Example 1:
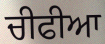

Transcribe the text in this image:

ਚੀਫੀਆ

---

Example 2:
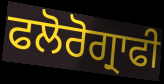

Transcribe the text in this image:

ਫਲੋਰੋਗ੍ਰਾਫੀ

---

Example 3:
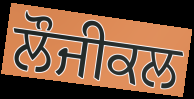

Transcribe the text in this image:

ਲੌਜੀਕਲ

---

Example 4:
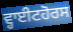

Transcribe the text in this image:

ਵ੍ਹਾਈਟਹੋਰਸ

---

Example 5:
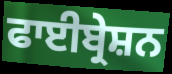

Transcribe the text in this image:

ਫਾਈਬ੍ਰੇਸ਼ਨ